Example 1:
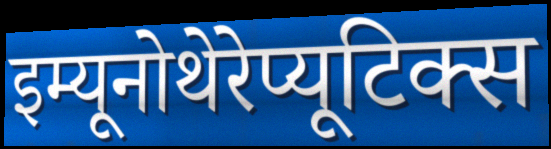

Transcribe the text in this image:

इम्यूनोथेरेप्यूटिक्स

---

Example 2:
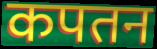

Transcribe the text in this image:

कपतन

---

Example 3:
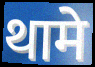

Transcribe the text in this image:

थामे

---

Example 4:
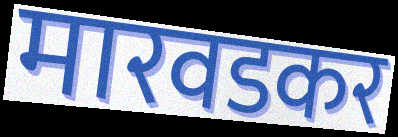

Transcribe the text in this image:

मारवडकर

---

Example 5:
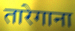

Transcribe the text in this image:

तारेगाना